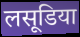
लसूडिया